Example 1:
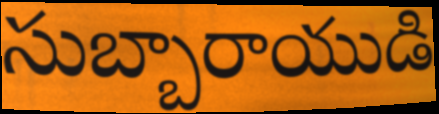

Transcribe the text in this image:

సుబ్బారాయుడి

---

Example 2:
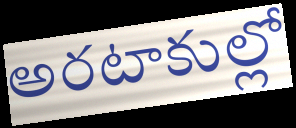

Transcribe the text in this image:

అరటాకుల్లో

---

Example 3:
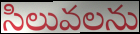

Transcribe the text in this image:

సిలువలను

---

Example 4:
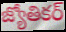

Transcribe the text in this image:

జ్యోతికర్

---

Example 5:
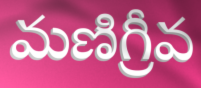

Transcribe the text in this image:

మణిగ్రీవ